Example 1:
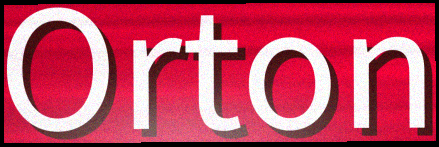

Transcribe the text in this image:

Orton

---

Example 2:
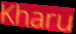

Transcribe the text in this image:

Kharu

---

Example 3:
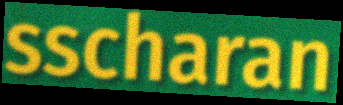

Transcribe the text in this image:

sscharan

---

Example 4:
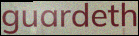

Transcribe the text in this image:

guardeth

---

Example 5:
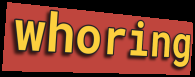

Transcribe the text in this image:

whoring